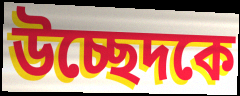
উচ্ছেদকে